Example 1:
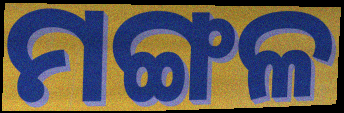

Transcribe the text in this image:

ମଙ୍ଗଳ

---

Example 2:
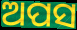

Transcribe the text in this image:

ଅପସ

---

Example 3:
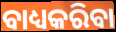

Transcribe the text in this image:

ବାଧ୍ୟକରିବା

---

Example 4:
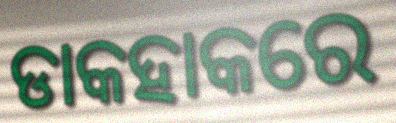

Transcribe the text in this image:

ଡାକହାକରେ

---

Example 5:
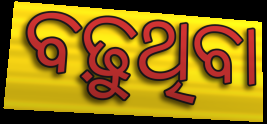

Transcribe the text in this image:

ବଢ଼ୁଥିବା